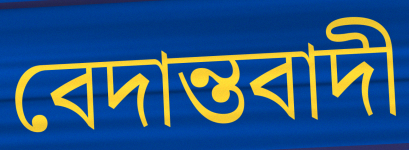
বেদান্তবাদী